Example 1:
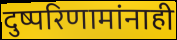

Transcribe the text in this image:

दुष्परिणामांनाही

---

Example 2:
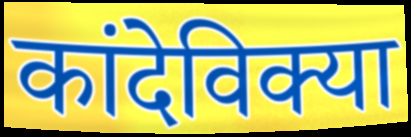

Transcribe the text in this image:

कांदेविक्या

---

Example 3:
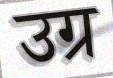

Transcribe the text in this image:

उग्र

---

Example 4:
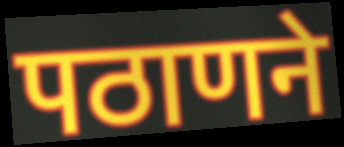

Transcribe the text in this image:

पठाणने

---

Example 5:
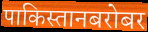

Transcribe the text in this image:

पाकिस्तानबरोबर